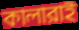
কালারাই